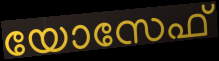
യോസേഫ്